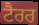
ਟੈਰਰ